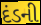
દંડની